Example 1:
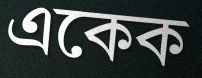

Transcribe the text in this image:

একেক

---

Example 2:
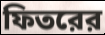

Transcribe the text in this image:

ফিতরের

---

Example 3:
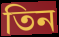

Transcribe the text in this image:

তিন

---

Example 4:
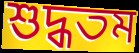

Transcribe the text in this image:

শুদ্ধতম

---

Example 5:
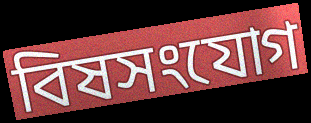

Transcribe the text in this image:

বিষসংযোগ